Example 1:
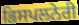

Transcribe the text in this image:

ਡਿਸਪਲਨੇਰੀ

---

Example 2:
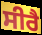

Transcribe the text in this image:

ਸੀਰੈ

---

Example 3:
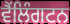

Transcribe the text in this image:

ਵੈਂਲਿੰਗਟਨ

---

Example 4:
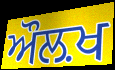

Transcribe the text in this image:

ਔਲ਼ਖ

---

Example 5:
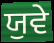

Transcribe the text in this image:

ਯੁਵੇ